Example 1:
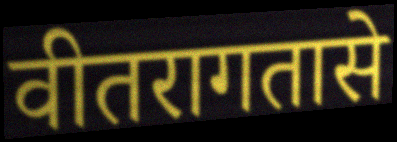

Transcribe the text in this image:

वीतरागतासे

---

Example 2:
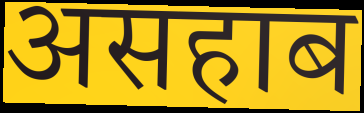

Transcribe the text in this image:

असहाब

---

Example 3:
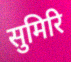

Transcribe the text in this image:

सुमिरि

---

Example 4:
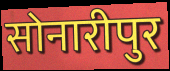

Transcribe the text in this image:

सोनारीपुर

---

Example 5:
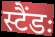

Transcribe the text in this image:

स्टैंडः